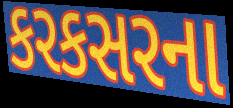
કરકસરના